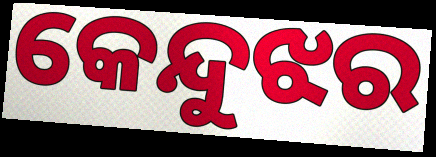
କେନ୍ଦୁଝର